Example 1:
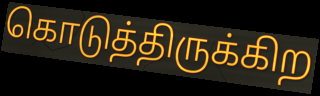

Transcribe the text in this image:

கொடுத்திருக்கிற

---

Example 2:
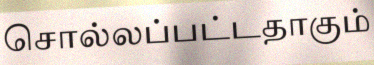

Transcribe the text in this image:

சொல்லப்பட்டதாகும்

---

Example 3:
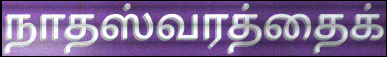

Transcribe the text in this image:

நாதஸ்வரத்தைக்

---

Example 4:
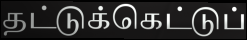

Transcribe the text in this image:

தட்டுக்கெட்டுப்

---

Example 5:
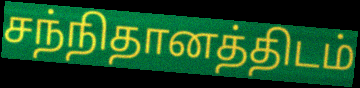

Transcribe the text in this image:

சந்நிதானத்திடம்